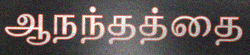
ஆநந்தத்தை